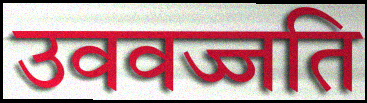
उववज्जति